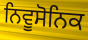
ਨਿਵੂਸੋਨਿਕ